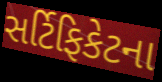
સર્ટિફિકેટના